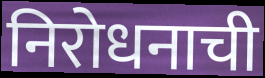
निरोधनाची